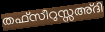
തഫ്സീറുസ്സഅ്ദി